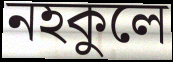
নহকুলে